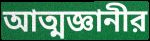
আত্মজ্ঞানীর